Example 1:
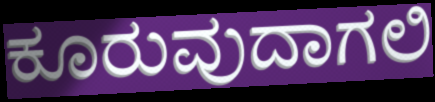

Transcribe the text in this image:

ಕೂರುವುದಾಗಲಿ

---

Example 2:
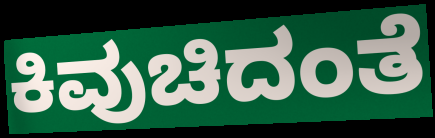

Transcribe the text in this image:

ಕಿವುಚಿದಂತೆ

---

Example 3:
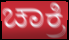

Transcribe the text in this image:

ಚಾಕ್ರಿ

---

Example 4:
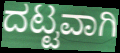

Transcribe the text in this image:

ದಟ್ಟವಾಗಿ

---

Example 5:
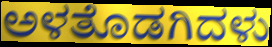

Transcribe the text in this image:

ಅಳತೊಡಗಿದಳು